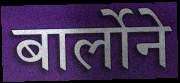
बार्लोने